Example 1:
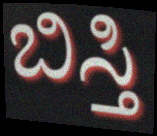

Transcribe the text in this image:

ಬಿಸ್ತಿ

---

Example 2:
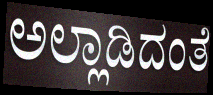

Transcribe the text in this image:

ಅಲ್ಲಾಡಿದಂತೆ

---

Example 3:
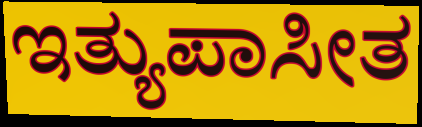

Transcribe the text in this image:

ಇತ್ಯುಪಾಸೀತ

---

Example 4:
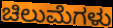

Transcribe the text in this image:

ಚಿಲುಮೆಗಳು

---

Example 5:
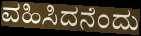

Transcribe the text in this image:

ವಹಿಸಿದನೆಂದು